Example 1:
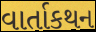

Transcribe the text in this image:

વાર્તાકથન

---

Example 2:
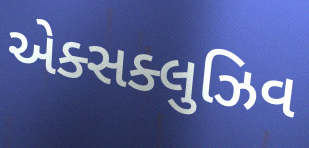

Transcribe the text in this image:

એક્સક્લુઝિવ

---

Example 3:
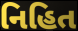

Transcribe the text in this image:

નિહિત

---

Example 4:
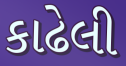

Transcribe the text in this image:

કાઢેલી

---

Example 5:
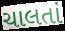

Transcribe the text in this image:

ચાલતાં